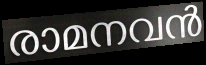
രാമനവൻ